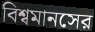
বিশ্বমানসের